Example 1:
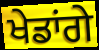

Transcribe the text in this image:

ਖੇਡਾਂਗੇ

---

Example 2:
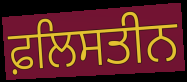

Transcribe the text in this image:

ਫ਼ਲਿਸਤੀਨ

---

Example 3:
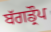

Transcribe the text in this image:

ਬੱਗਡ੍ਰੌਪ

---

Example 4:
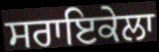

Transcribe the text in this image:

ਸਰਾਇਕੇਲਾ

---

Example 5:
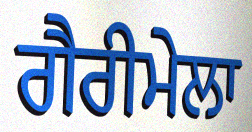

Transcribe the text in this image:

ਗੈਰੀਮੇਲਾ